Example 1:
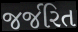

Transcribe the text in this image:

જર્જરિત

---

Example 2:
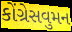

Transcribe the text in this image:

કોંગ્રેસવુમન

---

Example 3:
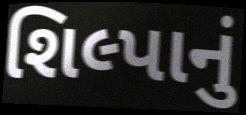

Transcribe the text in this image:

શિલ્પાનું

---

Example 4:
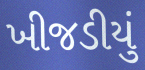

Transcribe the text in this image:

ખીજડીયું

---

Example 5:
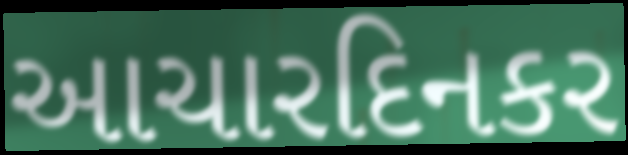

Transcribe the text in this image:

આચારદિનકર